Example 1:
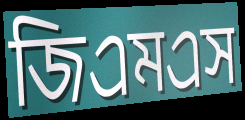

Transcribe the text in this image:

জিএমএস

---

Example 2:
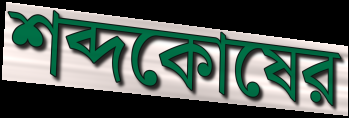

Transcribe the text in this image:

শব্দকোষের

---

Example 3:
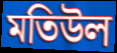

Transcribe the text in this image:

মতিউল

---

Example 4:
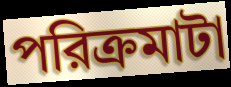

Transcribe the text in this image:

পরিক্রমাটা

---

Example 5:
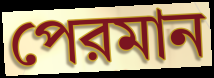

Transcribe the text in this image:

পেরমান